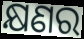
କ୍ଷଣର